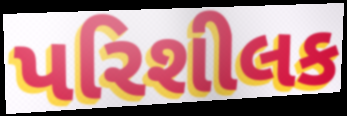
પરિશીલક